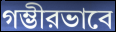
গম্ভীরভাবে